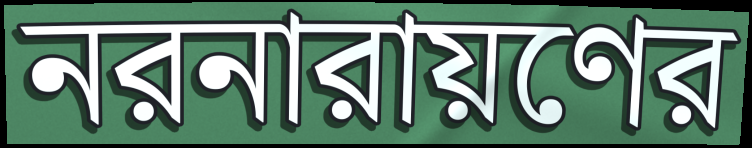
নরনারায়ণের